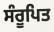
ਸੰਰੂਪਿਤ